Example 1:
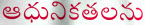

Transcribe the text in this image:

ఆధునికతలను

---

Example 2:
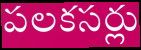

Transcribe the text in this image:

పలకసర్లు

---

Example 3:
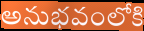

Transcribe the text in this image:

అనుభవంలోకి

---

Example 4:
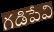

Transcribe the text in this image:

గడిపేవి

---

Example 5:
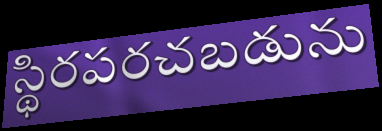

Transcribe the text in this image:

స్థిరపరచబడును